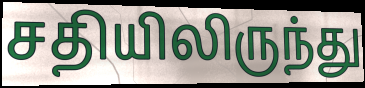
சதியிலிருந்து